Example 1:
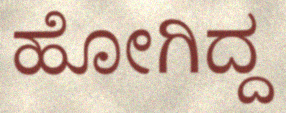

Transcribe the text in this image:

ಹೋಗಿದ್ದ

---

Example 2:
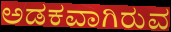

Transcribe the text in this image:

ಅಡಕವಾಗಿರುವ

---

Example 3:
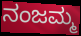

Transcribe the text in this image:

ನಂಜಮ್ಮ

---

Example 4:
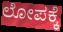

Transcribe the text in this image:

ಲೋಪಕ್ಕೆ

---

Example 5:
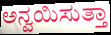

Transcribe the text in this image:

ಅನ್ವಯಿಸುತ್ತಾ